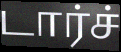
டார்ச்